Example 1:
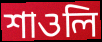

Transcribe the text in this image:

শাওলি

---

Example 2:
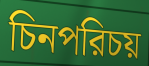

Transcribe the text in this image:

চিনপরিচয়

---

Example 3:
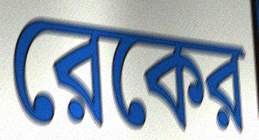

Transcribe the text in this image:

রেকের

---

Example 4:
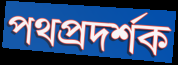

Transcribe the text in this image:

পথপ্রদর্শক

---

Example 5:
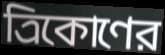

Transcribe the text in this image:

ত্রিকোণের